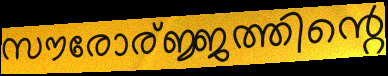
സൗരോര്ജ്ജത്തിന്റെ